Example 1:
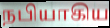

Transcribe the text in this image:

நபியாகிய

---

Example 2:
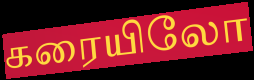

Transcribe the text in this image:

கரையிலோ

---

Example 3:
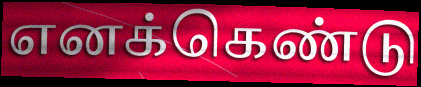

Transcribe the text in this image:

எனக்கெண்டு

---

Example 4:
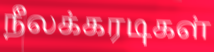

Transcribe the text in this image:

நீலக்கரடிகள்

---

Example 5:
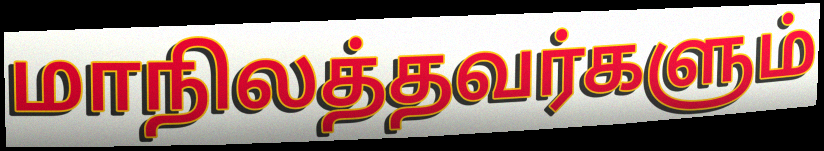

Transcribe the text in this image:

மாநிலத்தவர்களும்